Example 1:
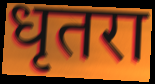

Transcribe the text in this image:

धृतरा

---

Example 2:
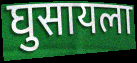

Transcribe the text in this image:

घुसायला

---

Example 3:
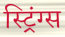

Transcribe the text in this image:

स्ट्रिंग्स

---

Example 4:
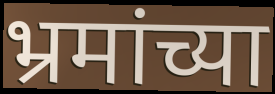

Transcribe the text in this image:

भ्रमांच्या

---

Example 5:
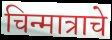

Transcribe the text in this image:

चिन्मात्राचे